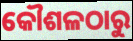
କୌଶଳଠାରୁ